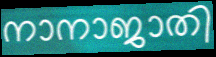
നാനാജാതി